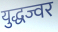
युद्धज्वर